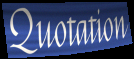
Quotation